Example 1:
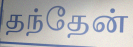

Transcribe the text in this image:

தந்தேன்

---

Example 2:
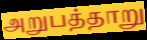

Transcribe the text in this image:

அறுபத்தாறு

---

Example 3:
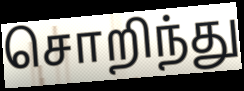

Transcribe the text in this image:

சொறிந்து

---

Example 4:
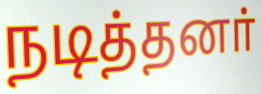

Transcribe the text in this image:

நடித்தனர்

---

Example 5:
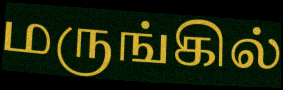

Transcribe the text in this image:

மருங்கில்